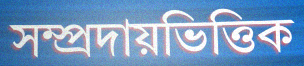
সম্প্রদায়ভিত্তিক